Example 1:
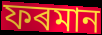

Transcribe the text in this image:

ফৰমান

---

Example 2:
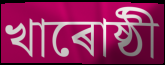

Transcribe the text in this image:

খাৰোষ্ঠী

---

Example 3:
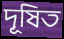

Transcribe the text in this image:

দূষিত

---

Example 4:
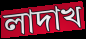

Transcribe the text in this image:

লাদাখ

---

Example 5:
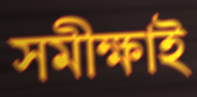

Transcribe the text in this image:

সমীক্ষাই